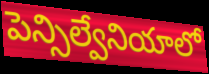
పెన్సిల్వేనియాలో